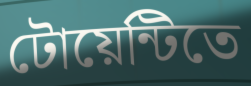
টোয়েন্টিতে